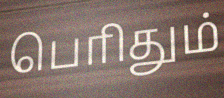
பெரிதும்